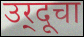
उर्दूचा